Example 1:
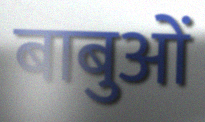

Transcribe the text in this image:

बाबुओं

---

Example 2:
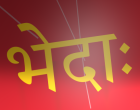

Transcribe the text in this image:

भेदाः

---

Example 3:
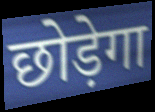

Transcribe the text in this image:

छोड़ेगा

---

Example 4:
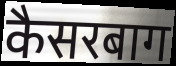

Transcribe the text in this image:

कैसरबाग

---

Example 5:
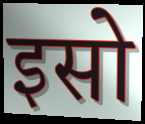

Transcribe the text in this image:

इसो